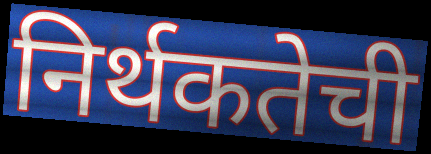
निर्थकतेची